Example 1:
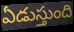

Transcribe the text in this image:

ఏడుస్తుంది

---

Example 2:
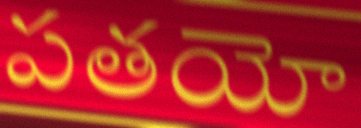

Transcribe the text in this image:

పతయో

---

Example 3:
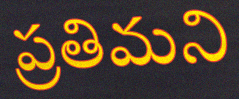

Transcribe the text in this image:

ప్రతిమని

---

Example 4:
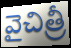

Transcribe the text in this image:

వైచిత్రీ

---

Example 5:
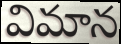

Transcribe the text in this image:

విమాన